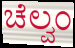
ಚೆಲ್ವಂ